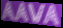
AAVA